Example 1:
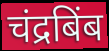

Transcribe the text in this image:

चंद्रबिंब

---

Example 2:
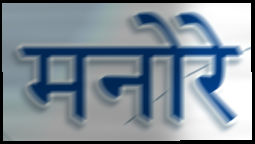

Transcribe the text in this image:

मनोरे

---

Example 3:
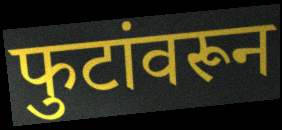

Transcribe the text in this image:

फुटांवरून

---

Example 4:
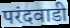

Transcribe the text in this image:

परंदवाडी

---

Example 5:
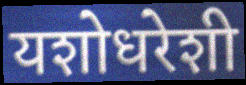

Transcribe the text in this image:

यशोधरेशी